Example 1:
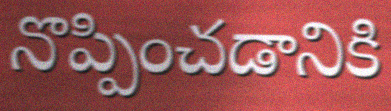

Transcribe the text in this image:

నొప్పించడానికి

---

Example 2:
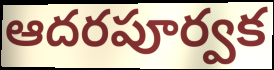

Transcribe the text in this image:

ఆదరపూర్వక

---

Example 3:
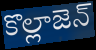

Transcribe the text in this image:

కొల్లాజెన్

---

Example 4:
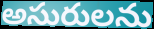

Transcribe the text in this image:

అసురులను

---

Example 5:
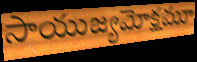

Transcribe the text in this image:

సాయుజ్యమోక్షమూ